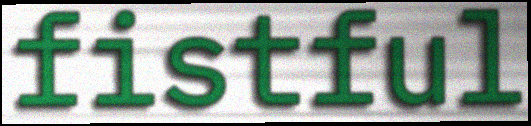
fistful